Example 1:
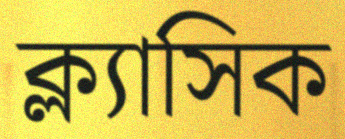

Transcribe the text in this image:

ক্ল্যাসিক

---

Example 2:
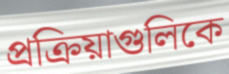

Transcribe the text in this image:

প্রক্রিয়াগুলিকে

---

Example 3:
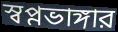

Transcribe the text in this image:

স্বপ্নভাঙ্গার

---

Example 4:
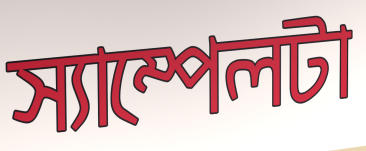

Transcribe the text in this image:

স্যাম্পেলটা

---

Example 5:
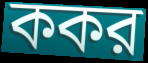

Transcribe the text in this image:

ককর